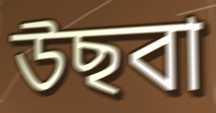
উছবা